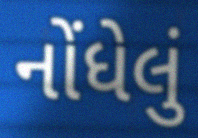
નોંધેલું